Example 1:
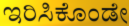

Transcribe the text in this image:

ಇರಿಸಿಕೊಂಡೇ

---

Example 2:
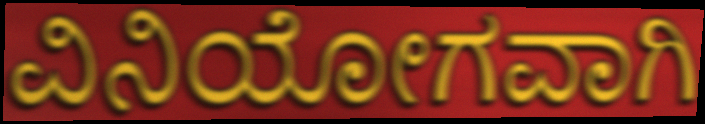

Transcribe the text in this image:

ವಿನಿಯೋಗವಾಗಿ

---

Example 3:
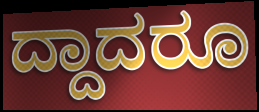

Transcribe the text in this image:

ದ್ದಾದರೂ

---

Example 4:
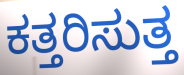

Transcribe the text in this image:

ಕತ್ತರಿಸುತ್ತ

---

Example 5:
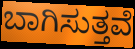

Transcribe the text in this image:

ಬಾಗಿಸುತ್ತವೆ